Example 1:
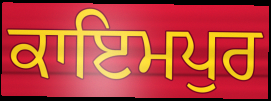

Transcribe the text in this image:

ਕਾਇਮਪੁਰ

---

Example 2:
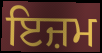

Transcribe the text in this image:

ਇਜ਼ਮ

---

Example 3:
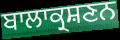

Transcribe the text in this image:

ਬਾਲਾਕ੍ਰਸ਼ਣਨ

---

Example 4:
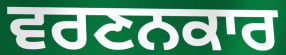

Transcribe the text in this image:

ਵਰਣਨਕਾਰ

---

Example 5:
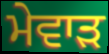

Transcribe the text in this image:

ਮੇਵਾੜ